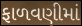
ફાળવણીમાં